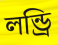
লন্ড্রি